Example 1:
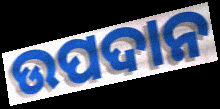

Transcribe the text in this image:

ଉପଦାନ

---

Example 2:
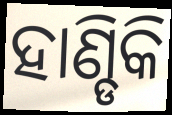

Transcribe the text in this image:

ହାଣ୍ଡିକି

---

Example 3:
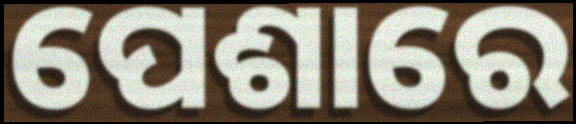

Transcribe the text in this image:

ପେଶାରେ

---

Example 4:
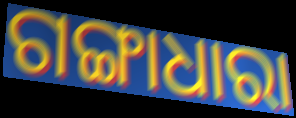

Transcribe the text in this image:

ଗଙ୍ଗାଧାରା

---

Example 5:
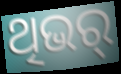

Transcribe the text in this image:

ଥିଭର୍